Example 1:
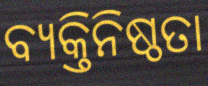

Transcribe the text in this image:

ବ୍ୟକ୍ତିନିଷ୍ଠତା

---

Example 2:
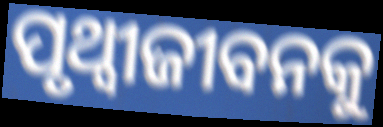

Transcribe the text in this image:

ପୃଥ୍ୱୀଜୀବନକୁ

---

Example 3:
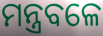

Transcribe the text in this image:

ମନ୍ତ୍ରବଳେ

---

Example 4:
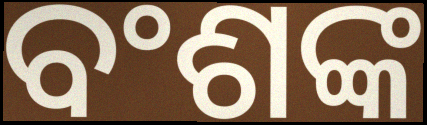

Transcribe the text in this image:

ବଂଶଙ୍କ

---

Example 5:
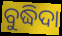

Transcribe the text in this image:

ବୁଦ୍ଧିଦା